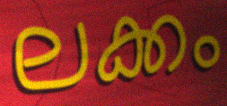
ലക്കം